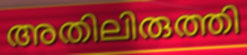
അതിലിരുത്തി